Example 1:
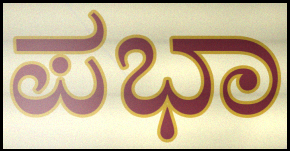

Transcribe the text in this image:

ಪಭಾ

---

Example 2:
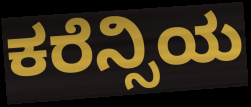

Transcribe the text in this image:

ಕರೆನ್ಸಿಯ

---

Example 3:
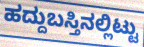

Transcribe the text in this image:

ಹದ್ದುಬಸ್ತಿನಲ್ಲಿಟ್ಟು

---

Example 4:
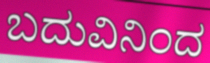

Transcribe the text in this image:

ಬದುವಿನಿಂದ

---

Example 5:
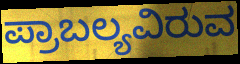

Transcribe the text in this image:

ಪ್ರಾಬಲ್ಯವಿರುವ